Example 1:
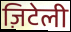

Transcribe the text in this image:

ज़िटेली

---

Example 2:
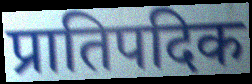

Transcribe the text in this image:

प्रातिपदिक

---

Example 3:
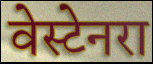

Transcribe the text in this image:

वेस्टेनरा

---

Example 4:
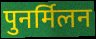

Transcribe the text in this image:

पुनर्मिलन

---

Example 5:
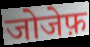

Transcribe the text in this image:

जोजेफ़